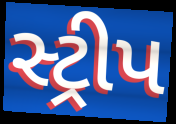
સ્ટ્રીપ